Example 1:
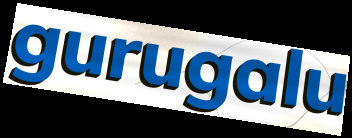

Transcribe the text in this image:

gurugalu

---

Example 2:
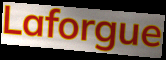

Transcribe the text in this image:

Laforgue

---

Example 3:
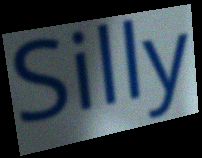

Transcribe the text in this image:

Silly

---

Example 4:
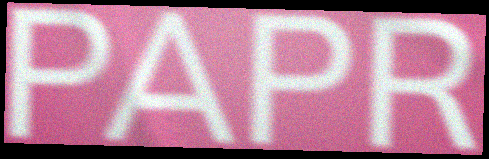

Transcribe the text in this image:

PAPR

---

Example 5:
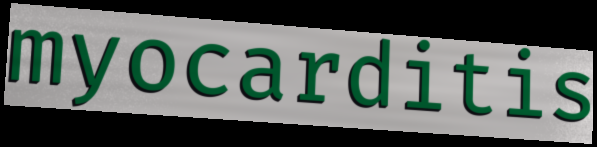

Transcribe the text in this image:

myocarditis